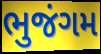
ભુજંગમ